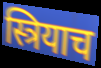
स्त्रियाच